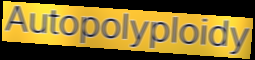
Autopolyploidy